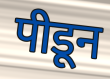
पीडून